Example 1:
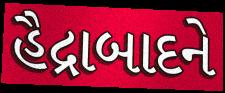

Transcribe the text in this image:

હૈદ્રાબાદને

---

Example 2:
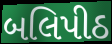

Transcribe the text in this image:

બલિપીઠ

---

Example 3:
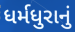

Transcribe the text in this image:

ધર્મધુરાનું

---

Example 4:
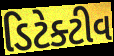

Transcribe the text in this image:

ડિટેક્ટીવ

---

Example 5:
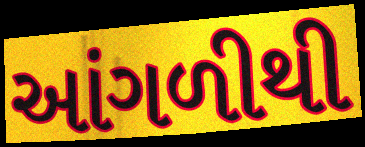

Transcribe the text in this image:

આંગળીથી